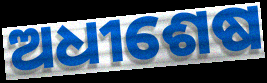
ଅଧୀଶେଷ